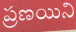
ప్రణయిని